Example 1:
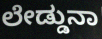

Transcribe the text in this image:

ಲೇಡ್ಡುನಾ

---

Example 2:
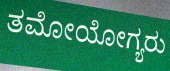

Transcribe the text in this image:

ತಮೋಯೋಗ್ಯರು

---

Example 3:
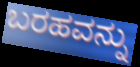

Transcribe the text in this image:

ಬರಹವನ್ನು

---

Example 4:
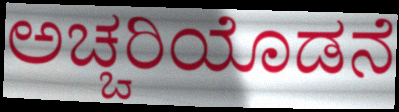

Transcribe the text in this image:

ಅಚ್ಚರಿಯೊಡನೆ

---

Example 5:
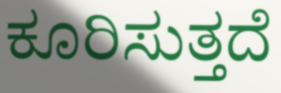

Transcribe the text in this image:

ಕೂರಿಸುತ್ತದೆ